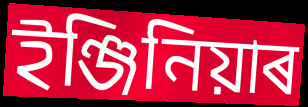
ইঞ্জিনিয়াৰ